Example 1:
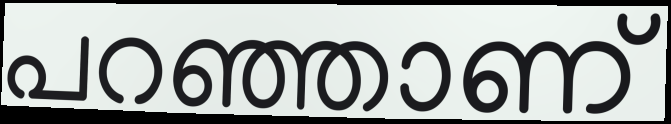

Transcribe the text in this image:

പറഞ്ഞാണ്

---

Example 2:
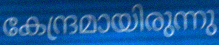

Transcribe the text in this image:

കേന്ദ്രമായിരുന്നു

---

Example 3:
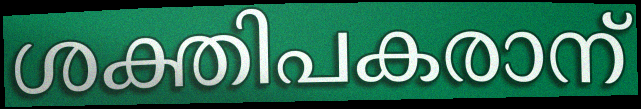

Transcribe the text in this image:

ശക്തിപകരാന്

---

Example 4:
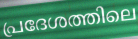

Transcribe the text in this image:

പ്രദേശത്തിലെ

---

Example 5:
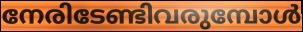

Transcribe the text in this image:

നേരിടേണ്ടിവരുമ്പോൾ